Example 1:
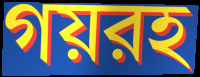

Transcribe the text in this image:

গয়রহ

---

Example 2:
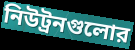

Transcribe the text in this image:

নিউট্রনগুলোর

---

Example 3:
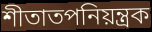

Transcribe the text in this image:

শীতাতপনিয়ন্ত্রক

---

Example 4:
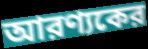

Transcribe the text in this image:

আরণ্যকের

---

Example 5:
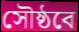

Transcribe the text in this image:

সৌষ্ঠবে